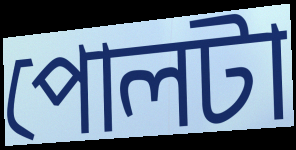
পোলটা